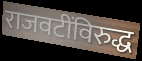
राजवटींविरुद्ध